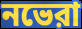
নভেরা